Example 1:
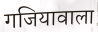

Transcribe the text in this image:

गजियावाला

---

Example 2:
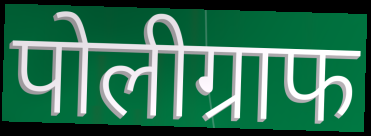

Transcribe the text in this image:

पोलीग्राफ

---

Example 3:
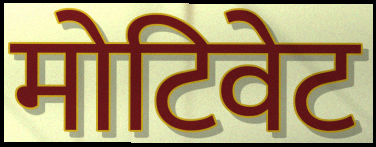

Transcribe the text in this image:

मोटिवेट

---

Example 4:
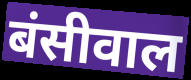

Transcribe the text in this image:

बंसीवाल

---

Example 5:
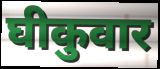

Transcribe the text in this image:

घीकुवार